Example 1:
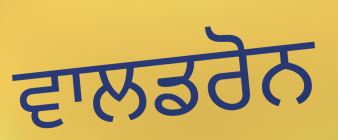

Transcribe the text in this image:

ਵਾਲਡਰੋਨ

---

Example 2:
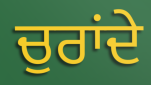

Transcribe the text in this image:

ਚੁਰਾਂਦੇ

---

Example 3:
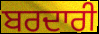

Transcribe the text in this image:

ਬਰਦਾਰੀ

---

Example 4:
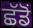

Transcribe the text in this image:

ਛੱਡੋਂ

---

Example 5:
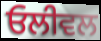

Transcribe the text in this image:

ਓਲੀਵਲ